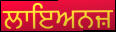
ਲਾਇਅਨਜ਼